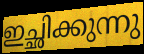
ഇച്ഛിക്കുന്നു